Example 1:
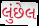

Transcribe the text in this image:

લુંછેલ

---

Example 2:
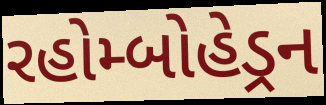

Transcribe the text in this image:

રહોમ્બોહેડ્રન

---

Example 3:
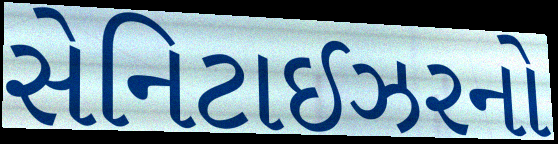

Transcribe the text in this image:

સેનિટાઈઝરનો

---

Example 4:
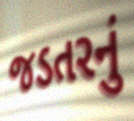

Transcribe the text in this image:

જડતરનું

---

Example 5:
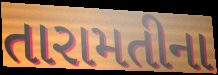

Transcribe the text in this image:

તારામતીના